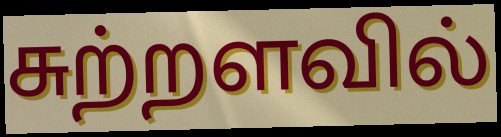
சுற்றளவில்